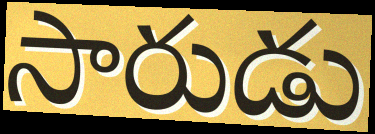
సారుడు